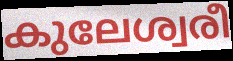
കുലേശ്വരീ